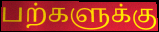
பற்களுக்கு